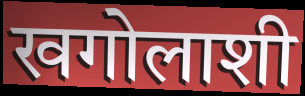
खगोलाशी